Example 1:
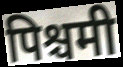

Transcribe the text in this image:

पिश्चमी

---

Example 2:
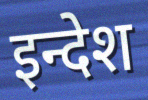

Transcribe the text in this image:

इन्देश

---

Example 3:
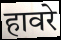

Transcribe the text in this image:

हावरे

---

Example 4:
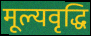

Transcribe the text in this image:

मूल्यवृद्धि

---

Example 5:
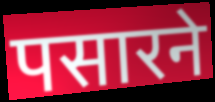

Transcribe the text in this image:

पसारने